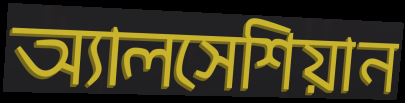
অ্যালসেশিয়ান